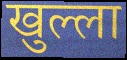
खुल्ला